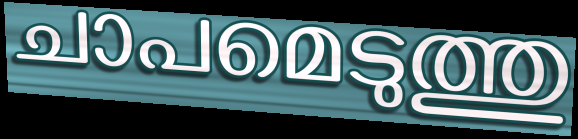
ചാപമെടുത്തു